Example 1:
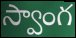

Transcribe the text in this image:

స్వాంగ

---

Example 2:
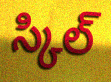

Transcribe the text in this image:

స్కిల్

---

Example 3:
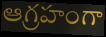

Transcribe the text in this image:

ఆగ్రహంగా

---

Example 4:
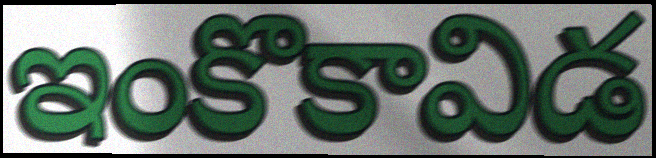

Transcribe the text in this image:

ఇంకొకావిడ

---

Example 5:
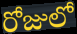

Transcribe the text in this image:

రోజులో